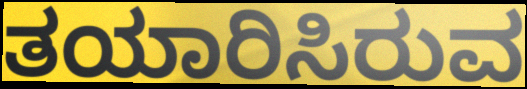
ತಯಾರಿಸಿರುವ